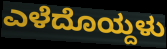
ಎಳೆದೊಯ್ದಳು